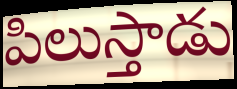
పిలుస్తాడు